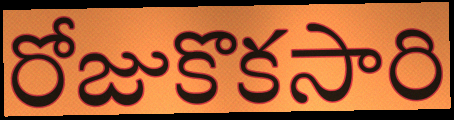
రోజుకొకసారి